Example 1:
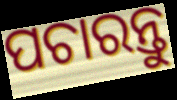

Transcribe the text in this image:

ପଚାରନ୍ତୁ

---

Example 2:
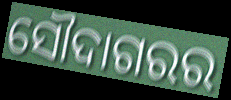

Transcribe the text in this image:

ସୌଦାଗରର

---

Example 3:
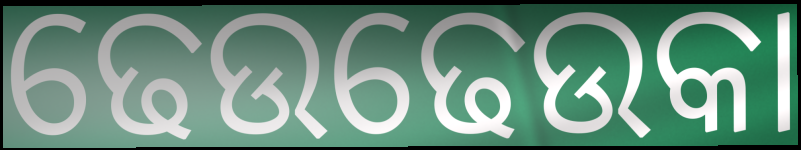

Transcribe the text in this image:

ଢେଉଢେଉକା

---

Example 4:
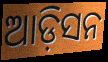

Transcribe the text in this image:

ଆଡ଼ିସନ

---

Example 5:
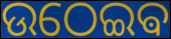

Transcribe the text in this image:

ଉଠେଇଵ